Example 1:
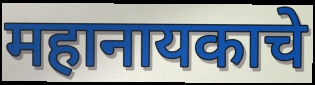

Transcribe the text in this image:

महानायकाचे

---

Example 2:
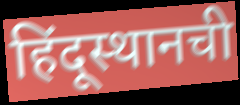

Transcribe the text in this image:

हिंदूस्थानची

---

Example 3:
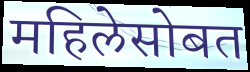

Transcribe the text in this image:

महिलेसोबत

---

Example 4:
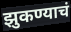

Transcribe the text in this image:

झुकण्याचं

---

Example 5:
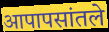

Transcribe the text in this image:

आपापसांतले